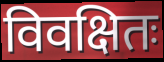
विवक्षितः